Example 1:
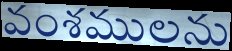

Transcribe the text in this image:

వంశములను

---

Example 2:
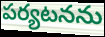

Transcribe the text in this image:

పర్యటనను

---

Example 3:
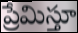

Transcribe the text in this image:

ప్రేమిస్తూ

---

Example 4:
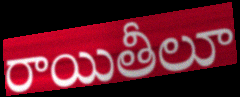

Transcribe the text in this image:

రాయితీలూ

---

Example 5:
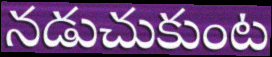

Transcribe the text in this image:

నడుచుకుంట